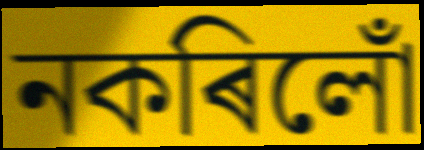
নকৰিলোঁ